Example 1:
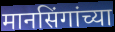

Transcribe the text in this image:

मानसिंगांच्या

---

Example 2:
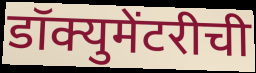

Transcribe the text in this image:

डॉक्युमेंटरीची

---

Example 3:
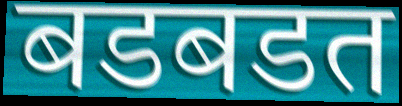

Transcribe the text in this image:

बडबडत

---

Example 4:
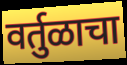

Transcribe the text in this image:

वर्तुळाचा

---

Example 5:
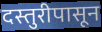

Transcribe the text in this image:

दस्तुरीपासून